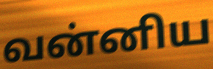
வன்னிய